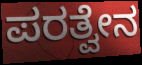
ಪರತ್ವೇನ